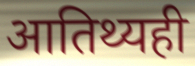
आतिथ्यही